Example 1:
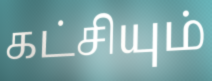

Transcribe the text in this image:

கட்சியும்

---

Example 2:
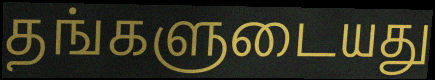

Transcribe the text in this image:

தங்களுடையது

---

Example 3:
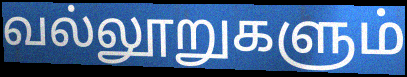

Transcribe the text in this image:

வல்லூறுகளும்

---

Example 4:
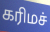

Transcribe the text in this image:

கரிமச்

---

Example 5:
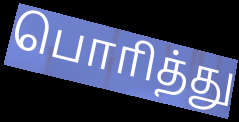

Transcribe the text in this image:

பொரித்து